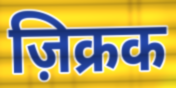
ज़िक्रक